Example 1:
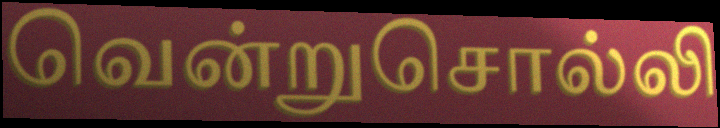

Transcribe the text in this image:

வென்றுசொல்லி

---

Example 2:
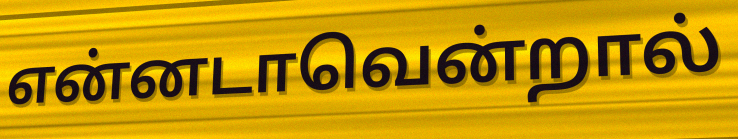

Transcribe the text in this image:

என்னடாவென்றால்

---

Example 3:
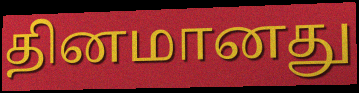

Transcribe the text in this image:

தினமானது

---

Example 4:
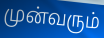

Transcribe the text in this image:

முன்வரும்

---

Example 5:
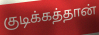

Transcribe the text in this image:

குடிக்கத்தான்